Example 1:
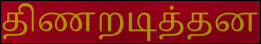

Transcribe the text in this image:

திணறடித்தன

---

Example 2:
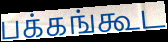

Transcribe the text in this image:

பக்கங்கூட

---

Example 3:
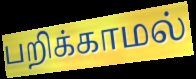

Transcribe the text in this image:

பறிக்காமல்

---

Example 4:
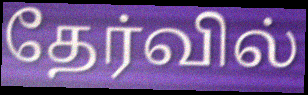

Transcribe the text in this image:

தேர்வில்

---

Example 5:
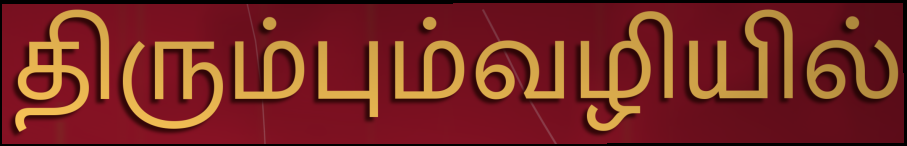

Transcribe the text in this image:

திரும்பும்வழியில்